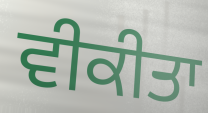
ਵੀਕੀਤਾ